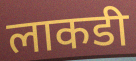
लाकडी